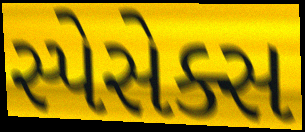
સ્પેસેક્સ